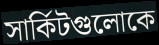
সার্কিটগুলোকে